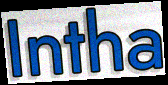
Intha